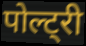
पोल्ट्री